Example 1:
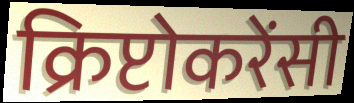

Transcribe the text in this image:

क्रिप्टोकरेंसी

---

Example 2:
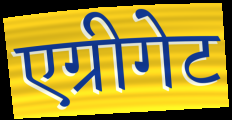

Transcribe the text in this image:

एग्रीगेट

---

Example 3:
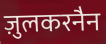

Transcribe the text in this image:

ज़ुलकरनैन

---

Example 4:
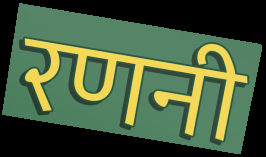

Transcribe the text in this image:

रणनी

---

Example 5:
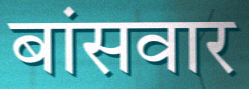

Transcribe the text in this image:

बांसवार